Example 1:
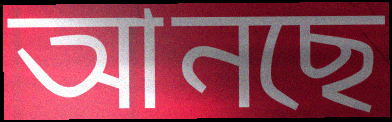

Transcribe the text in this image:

আনছে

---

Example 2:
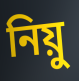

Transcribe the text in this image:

নিয়ু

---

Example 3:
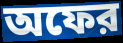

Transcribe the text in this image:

অফের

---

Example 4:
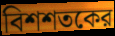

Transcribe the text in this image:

বিশশতকের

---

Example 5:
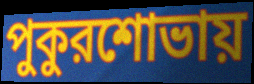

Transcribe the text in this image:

পুকুরশোভায়